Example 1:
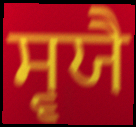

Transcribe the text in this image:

ਸ੍ਵਯੈ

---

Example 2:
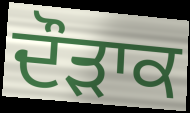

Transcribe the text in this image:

ਦੌੜਾਕ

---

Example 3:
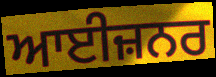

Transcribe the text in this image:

ਆਈਜ਼ਨਰ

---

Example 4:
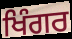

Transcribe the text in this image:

ਖਿੰਗਰ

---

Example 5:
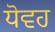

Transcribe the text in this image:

ਧੋਵਹ